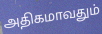
அதிகமாவதும்